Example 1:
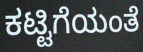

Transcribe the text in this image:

ಕಟ್ಟಿಗೆಯಂತೆ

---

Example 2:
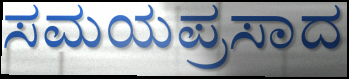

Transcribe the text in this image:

ಸಮಯಪ್ರಸಾದ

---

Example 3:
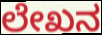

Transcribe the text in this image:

ಲೇಖನ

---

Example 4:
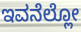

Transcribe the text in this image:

ಇವನೆಲ್ಲೋ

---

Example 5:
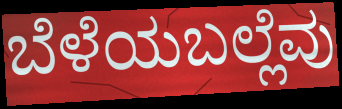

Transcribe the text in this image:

ಬೆಳೆಯಬಲ್ಲೆವು